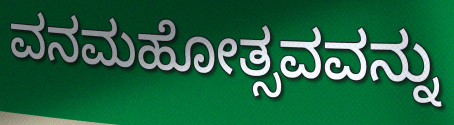
ವನಮಹೋತ್ಸವವನ್ನು